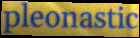
pleonastic